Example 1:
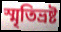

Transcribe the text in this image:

স্মৃতিভ্রষ্ট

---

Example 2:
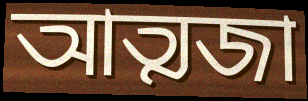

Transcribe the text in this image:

আত্মজা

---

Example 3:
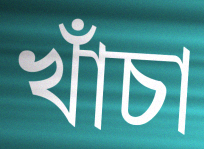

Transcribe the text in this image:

খাঁচা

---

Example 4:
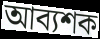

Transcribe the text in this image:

আব্যশক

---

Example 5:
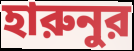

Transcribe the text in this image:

হারুনুর